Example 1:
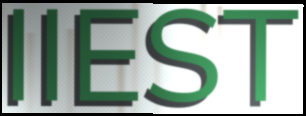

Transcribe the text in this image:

IIEST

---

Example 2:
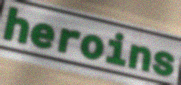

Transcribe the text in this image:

heroins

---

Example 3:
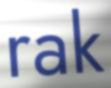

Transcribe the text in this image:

rak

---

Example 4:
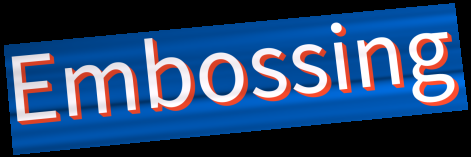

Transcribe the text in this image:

Embossing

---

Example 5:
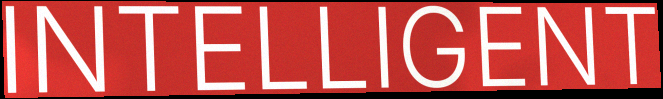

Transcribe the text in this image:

INTELLIGENT